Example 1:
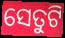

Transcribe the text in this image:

ସେତୁଟି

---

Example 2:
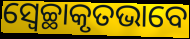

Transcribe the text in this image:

ସ୍ୱେଚ୍ଛାକୃତଭାବେ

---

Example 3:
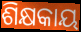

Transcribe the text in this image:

ଶିକ୍ଷକାୟ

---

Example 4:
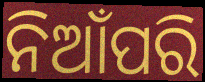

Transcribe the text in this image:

ନିଆଁପରି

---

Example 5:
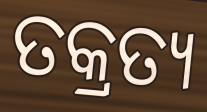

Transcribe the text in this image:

ତକ୍ରତ୍ୟ